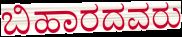
ಬಿಹಾರದವರು